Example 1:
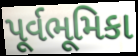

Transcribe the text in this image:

પૂર્વભૂમિકા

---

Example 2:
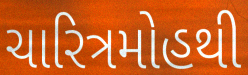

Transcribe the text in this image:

ચારિત્રમોહથી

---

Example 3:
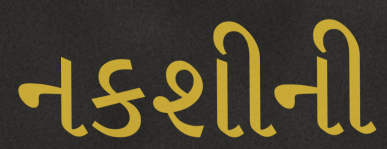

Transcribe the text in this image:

નકશીની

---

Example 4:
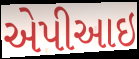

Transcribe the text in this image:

એપીઆઇ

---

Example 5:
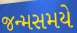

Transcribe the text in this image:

જન્મસમયે